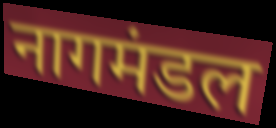
नागमंडल